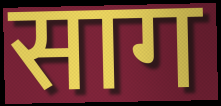
साग